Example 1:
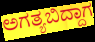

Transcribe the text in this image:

ಅಗತ್ಯಬಿದ್ದಾಗ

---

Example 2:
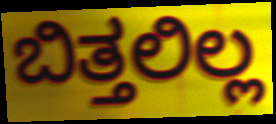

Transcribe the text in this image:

ಬಿತ್ತಲಿಲ್ಲ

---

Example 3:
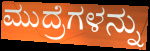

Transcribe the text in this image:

ಮುದ್ರೆಗಳನ್ನು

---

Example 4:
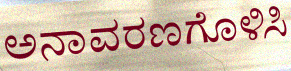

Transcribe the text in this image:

ಅನಾವರಣಗೊಳಿಸಿ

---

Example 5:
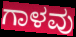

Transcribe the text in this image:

ಗಾಳವು